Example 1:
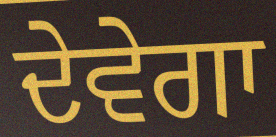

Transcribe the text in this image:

ਦੇਵੇਗਾ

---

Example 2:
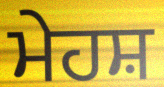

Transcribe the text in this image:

ਮੇਹਸ਼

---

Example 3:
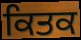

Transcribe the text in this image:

ਕਿਤਕ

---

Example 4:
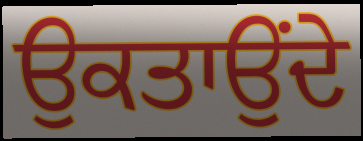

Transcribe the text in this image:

ਉਕਤਾਉਂਦੇ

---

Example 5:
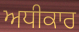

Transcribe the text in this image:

ਅਧੀਕਾਰ